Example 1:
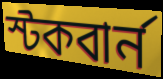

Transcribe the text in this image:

স্টকবার্ন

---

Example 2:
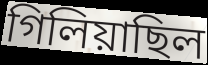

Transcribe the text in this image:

গিলিয়াছিল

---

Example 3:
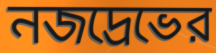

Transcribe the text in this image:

নজদ্রেভের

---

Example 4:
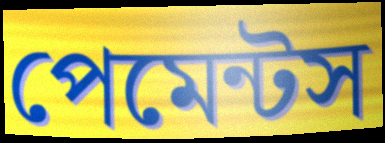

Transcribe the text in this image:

পেমেন্টস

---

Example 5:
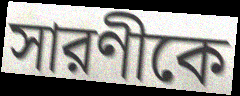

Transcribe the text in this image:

সারণীকে